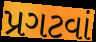
પ્રગટવાં